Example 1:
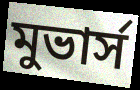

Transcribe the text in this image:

মুভার্স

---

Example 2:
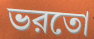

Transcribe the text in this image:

ভরতো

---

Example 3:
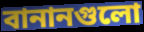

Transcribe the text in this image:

বানানগুলো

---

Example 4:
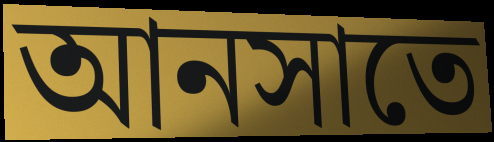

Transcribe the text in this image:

আনসাতে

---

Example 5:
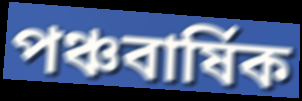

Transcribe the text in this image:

পঞ্চবার্ষিক